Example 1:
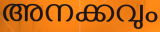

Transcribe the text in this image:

അനക്കവും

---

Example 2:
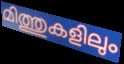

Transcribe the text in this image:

മിത്തുകളിലും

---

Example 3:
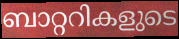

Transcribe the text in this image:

ബാറ്ററികളുടെ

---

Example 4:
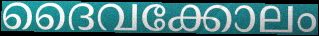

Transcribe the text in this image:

ദൈവക്കോലം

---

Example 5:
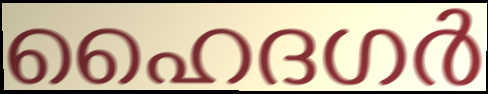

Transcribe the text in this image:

ഹൈദഗർ